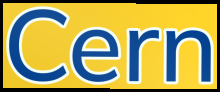
Cern